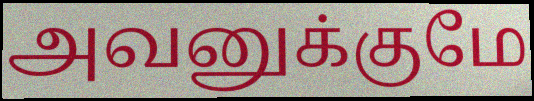
அவனுக்குமே